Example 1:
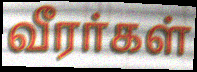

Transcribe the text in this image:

வீரர்கள்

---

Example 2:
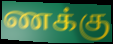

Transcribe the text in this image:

ணக்கு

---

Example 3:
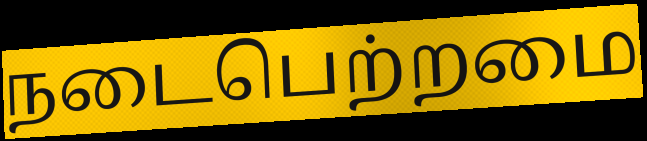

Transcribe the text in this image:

நடைபெற்றமை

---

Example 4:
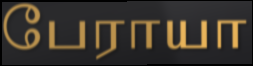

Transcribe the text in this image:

பேராயா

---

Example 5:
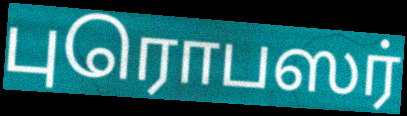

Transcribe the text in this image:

புரொபஸர்